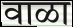
वाळा